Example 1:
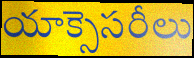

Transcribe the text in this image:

యాక్సెసరీలు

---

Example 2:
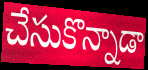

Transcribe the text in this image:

చేసుకొన్నాడా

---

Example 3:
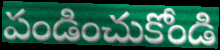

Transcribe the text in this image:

పండించుకోండి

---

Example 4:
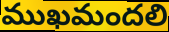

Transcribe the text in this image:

ముఖమందలి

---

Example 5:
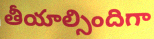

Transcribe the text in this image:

తీయాల్సిందిగా